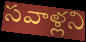
సవాళ్లని